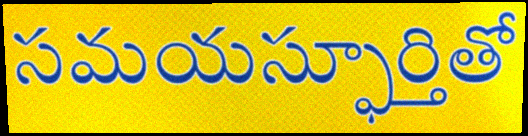
సమయస్ఫూర్తితో